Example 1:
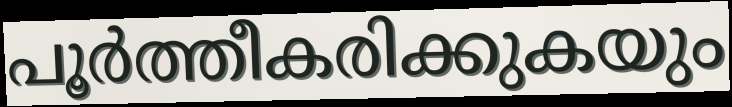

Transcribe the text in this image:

പൂർത്തീകരിക്കുകയും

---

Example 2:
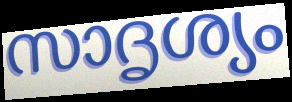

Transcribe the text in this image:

സാദൃശ്യം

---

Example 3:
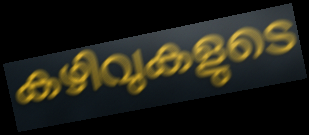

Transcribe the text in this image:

കഴിവുകളുടെ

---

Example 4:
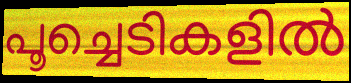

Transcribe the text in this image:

പൂച്ചെടികളിൽ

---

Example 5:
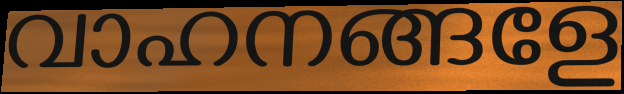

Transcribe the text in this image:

വാഹനങ്ങളേ